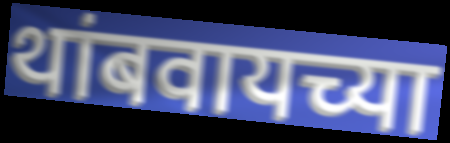
थांबवायच्या